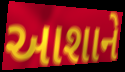
આશાને